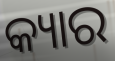
କ୍ୟାର